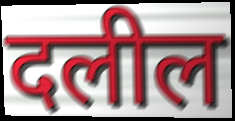
दलील